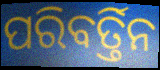
ପରିବର୍ତ୍ତିନ